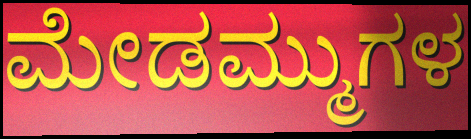
ಮೇಡಮ್ಮುಗಳ